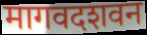
मागवदशवन